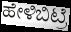
ಹೇಳಿಬಿಟ್ರೆ